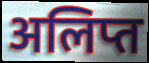
अलिप्त